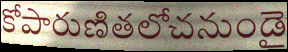
కోపారుణితలోచనుండై